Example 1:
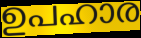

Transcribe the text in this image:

ഉപഹാര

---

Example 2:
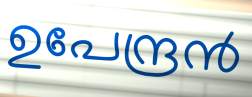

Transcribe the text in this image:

ഉപേന്ദ്രൻ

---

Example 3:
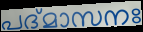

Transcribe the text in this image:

പദ്മാസനഃ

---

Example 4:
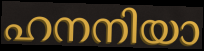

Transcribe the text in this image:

ഹനനിയാ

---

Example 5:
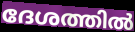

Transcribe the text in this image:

ദേശത്തിൽ